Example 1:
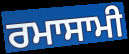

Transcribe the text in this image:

ਰਮਾਸਾਮੀ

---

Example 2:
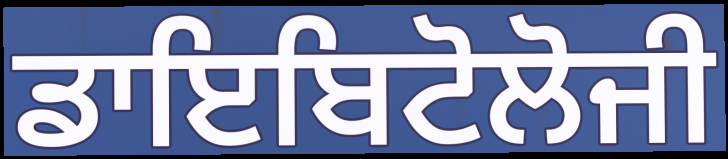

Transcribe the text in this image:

ਡਾਇਬਿਟੋਲੋਜੀ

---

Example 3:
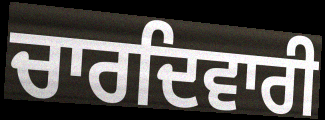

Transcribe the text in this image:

ਚਾਰਦਿਵਾਰੀ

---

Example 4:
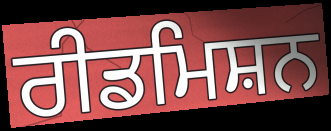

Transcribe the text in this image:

ਰੀਡਮਿਸ਼ਨ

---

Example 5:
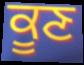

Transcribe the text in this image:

ਕੂਣ